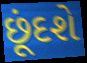
છૂંદશે